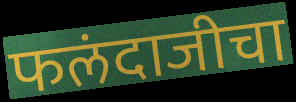
फलंदाजीचा